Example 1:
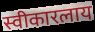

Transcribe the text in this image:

स्वीकारलाय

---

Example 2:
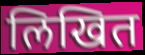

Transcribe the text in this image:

लिखित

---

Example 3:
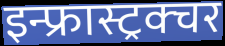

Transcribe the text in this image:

इन्फ्रास्ट्रक्‍चर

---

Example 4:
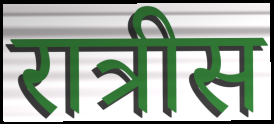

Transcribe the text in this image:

रात्रीस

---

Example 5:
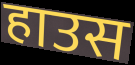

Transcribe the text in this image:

हाउस